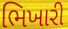
ભિખારી